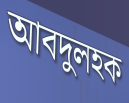
আবদুলহক